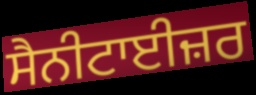
ਸੈਨੀਟਾਈਜ਼ਰ